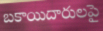
బకాయిదారులపై